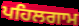
ਪਹਿਲਗਾਮ